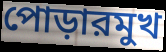
পোড়ারমুখ